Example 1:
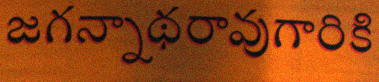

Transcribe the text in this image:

జగన్నాథరావుగారికి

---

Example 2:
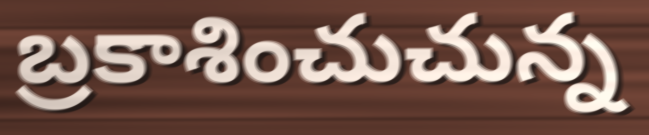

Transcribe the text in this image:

బ్రకాశించుచున్న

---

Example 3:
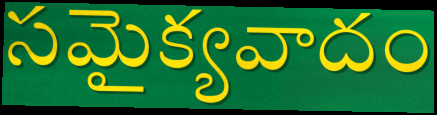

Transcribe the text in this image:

సమైక్యవాదం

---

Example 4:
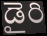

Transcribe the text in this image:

డైరి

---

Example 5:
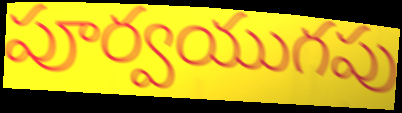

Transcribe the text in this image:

పూర్వయుగపు